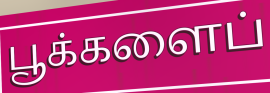
பூக்களைப்